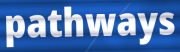
pathways